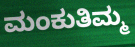
ಮಂಕುತಿಮ್ಮ